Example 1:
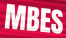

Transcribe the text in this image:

MBES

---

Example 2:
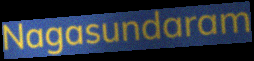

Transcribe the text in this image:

Nagasundaram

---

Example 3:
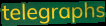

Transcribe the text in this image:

telegraphs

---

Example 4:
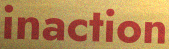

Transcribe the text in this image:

inaction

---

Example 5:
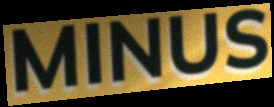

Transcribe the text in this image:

MINUS